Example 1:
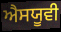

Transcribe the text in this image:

ਐਸਯੂਵੀ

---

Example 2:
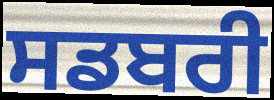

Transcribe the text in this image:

ਸਡਬਰੀ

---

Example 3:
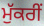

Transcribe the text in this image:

ਮੁੱਕਰੀਂ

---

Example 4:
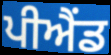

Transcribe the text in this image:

ਪੀਐਂਡ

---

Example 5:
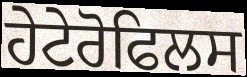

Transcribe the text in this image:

ਹੇਟੇਰੋਫਿਲਸ